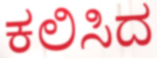
ಕಲಿಸಿದ